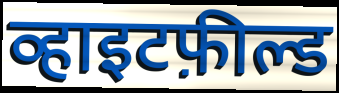
व्हाइटफ़ील्ड